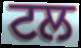
ਟਲ